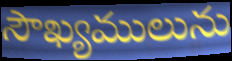
సౌఖ్యములును